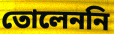
তোলেননি